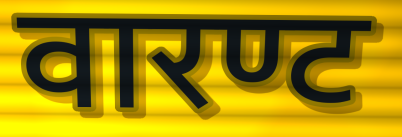
वारण्ट